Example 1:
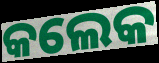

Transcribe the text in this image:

କଲେକ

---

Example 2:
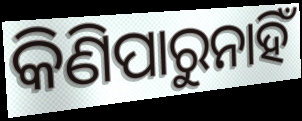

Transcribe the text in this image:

କିଣିପାରୁନାହିଁ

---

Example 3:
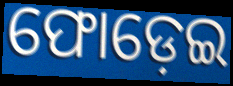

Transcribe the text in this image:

ଫୋଡ଼େଇ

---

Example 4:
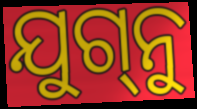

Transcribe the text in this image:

ଯୁଗ୍‌ନୁ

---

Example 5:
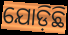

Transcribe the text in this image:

ଯୋଡ଼ିଛି